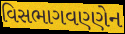
વિસભાગવણ્ણેન